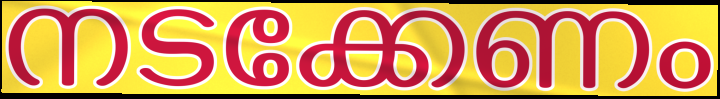
നടക്കേണം